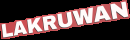
LAKRUWAN